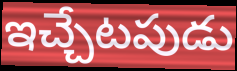
ఇచ్చేటపుడు